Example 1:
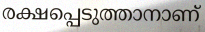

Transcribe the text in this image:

രക്ഷപ്പെടുത്താനാണ്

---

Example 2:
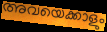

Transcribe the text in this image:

അവയെക്കാളും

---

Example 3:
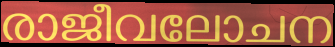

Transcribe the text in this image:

രാജീവലോചന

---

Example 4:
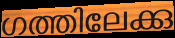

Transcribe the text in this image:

ഗത്തിലേക്കു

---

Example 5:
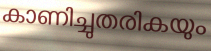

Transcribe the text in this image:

കാണിച്ചുതരികയും